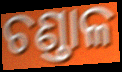
ଚଣ୍ଡାଳ